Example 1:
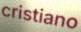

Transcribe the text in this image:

cristiano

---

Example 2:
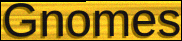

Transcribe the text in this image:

Gnomes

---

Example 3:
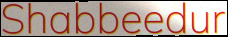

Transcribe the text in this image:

Shabbeedur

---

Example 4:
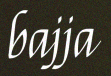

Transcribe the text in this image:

bajja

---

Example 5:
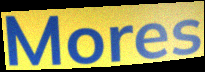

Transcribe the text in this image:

Mores